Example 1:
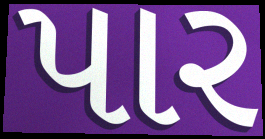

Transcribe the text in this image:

પાર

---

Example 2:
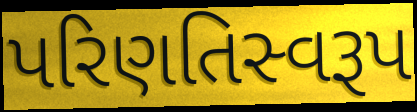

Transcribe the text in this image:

પરિણતિસ્વરૂપ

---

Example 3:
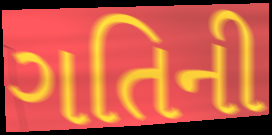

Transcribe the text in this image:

ગતિની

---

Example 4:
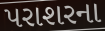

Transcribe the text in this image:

પરાશરના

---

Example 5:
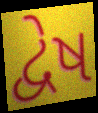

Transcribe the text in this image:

દ્વેષ